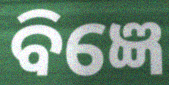
ବିଜ୍ଞେ